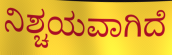
ನಿಶ್ಚಯವಾಗಿದೆ